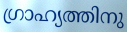
ഗ്രാഹ്യത്തിനു